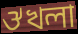
ঔখলা